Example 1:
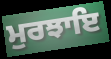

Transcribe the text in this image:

ਮੁਰਝਾਇ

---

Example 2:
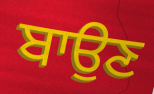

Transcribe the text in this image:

ਬਾਉਣ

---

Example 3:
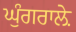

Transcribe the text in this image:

ਘੁੰਗਰਾਲ਼ੇ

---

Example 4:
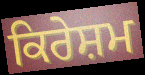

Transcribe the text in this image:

ਕਿਰੇਸ਼ਮ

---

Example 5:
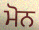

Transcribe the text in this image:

ਮੋਨ